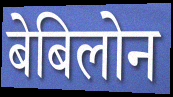
बेबिलोन